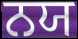
ਨਯ